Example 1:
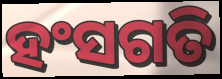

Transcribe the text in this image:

ହଂସଗତି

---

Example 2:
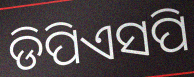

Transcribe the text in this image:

ଡିପିଏସପି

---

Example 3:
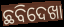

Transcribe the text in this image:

ଛବିଦେଖା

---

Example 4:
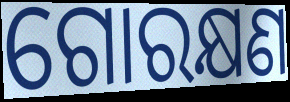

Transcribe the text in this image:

ଗୋରକ୍ଷଣ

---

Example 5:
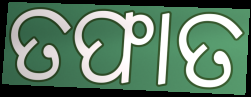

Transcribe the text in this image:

ତଫାତ